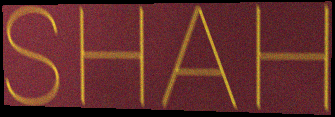
SHAH